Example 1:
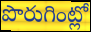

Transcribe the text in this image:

పొరుగింట్లో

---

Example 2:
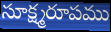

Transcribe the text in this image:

సూక్ష్మరూపము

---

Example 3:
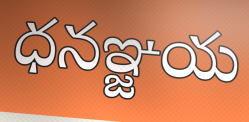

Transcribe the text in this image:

ధనఞ్జయ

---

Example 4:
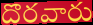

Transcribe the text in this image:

దొరవారు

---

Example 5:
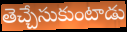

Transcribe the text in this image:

తెచ్చేసుకుంటాడు